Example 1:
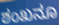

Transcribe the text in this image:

ಶಂಖನೂ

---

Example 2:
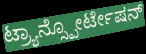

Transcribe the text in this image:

ಟ್ರ್ಯಾನ್ಸ್ಪೋರ್ಟೇಷನ್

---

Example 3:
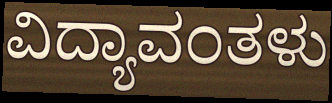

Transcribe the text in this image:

ವಿದ್ಯಾವಂತಳು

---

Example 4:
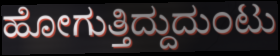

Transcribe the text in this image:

ಹೋಗುತ್ತಿದ್ದುದುಂಟು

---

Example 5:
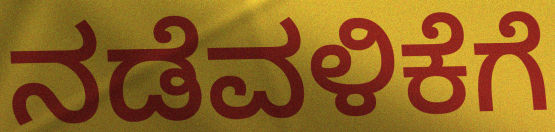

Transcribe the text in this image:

ನಡೆವಳಿಕೆಗೆ